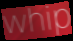
whip